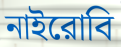
নাইরোবি